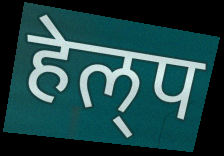
हेल्प